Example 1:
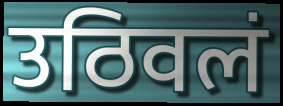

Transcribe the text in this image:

उठिवलं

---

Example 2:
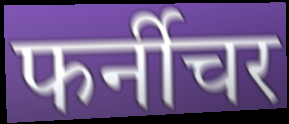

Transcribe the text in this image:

फर्नीचर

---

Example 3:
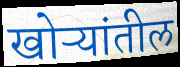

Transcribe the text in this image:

खोऱ्यांतील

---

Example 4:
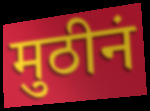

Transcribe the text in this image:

मुठीनं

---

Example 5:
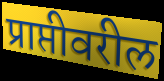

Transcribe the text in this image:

प्राप्तीवरील